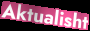
Aktualisht